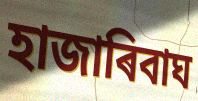
হাজাৰিবাঘ